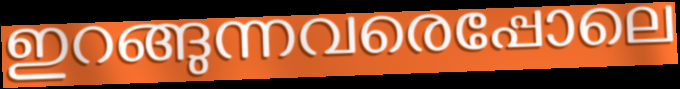
ഇറങ്ങുന്നവരെപ്പോലെ